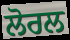
ਲੋਰਲ